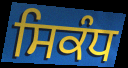
ਸਿਕੰਧ